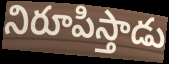
నిరూపిస్తాడు